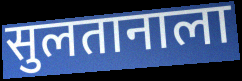
सुलतानाला